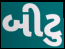
બીટુ